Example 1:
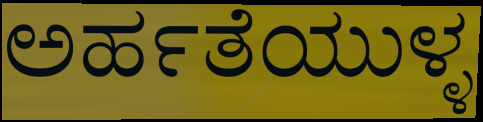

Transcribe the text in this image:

ಅರ್ಹತೆಯುಳ್ಳ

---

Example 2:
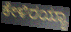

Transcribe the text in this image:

ಕೇಳಿರಯ್ಯಾ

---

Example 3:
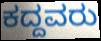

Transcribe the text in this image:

ಕದ್ದವರು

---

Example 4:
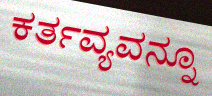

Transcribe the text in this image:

ಕರ್ತವ್ಯವನ್ನೂ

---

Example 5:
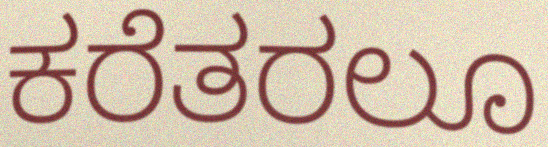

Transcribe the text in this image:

ಕರೆತರಲೂ